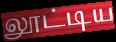
லூட்டிய